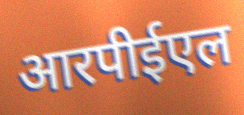
आरपीईएल